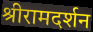
श्रीरामदर्शन